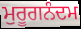
ਮੁਰੂਗਨੰਦਮ